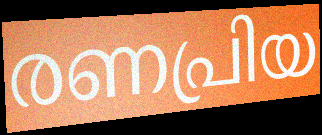
രണപ്രിയ